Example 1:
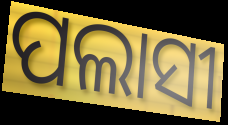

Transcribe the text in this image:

ପଲାସୀ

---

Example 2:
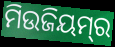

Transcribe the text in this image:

ମିଉଜିୟମ୍‌ର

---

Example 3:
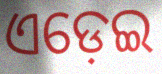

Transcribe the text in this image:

ଏଡ଼େଇ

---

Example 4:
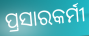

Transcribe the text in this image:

ପ୍ରସାରକର୍ମୀ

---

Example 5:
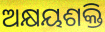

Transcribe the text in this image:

ଅକ୍ଷୟଶକ୍ତି